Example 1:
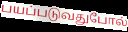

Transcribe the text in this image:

பயப்படுவதுபோல்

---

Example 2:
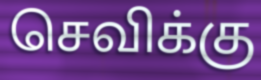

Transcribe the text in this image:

செவிக்கு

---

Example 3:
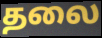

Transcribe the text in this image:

தலை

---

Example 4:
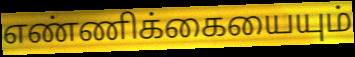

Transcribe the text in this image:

எண்ணிக்கையையும்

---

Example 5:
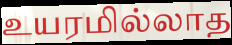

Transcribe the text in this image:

உயரமில்லாத